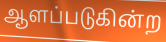
ஆளப்படுகின்ற